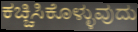
ಕಚ್ಚಿಸಿಕೊಳ್ಳುವುದು